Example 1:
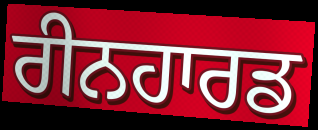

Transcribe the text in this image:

ਰੀਨਹਾਰਡ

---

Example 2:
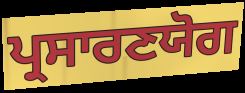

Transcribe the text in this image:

ਪ੍ਰਸਾਰਣਯੋਗ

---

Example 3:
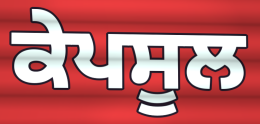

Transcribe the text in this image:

ਕੇਪਸੂਲ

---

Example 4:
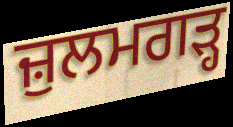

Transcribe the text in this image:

ਜ਼ੁਲਮਗੜ੍ਹ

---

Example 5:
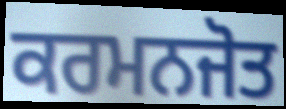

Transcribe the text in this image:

ਕਰਮਨਜੋਤ